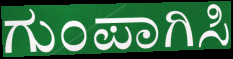
ಗುಂಪಾಗಿಸಿ